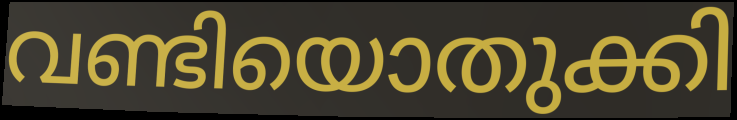
വണ്ടിയൊതുക്കി